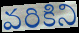
వరికిని